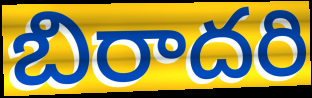
బిరాదరి